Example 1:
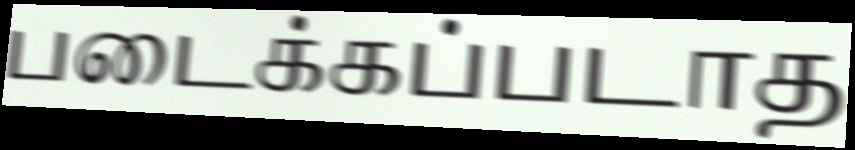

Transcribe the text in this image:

படைக்கப்படாத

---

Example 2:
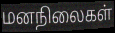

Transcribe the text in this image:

மனநிலைகள்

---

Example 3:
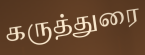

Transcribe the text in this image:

கருத்துரை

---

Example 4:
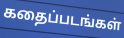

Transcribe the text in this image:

கதைப்படங்கள்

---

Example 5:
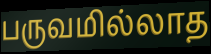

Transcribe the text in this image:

பருவமில்லாத